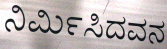
ನಿರ್ಮಿಸಿದವನ